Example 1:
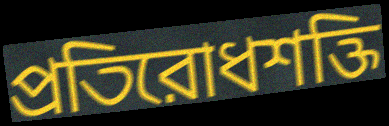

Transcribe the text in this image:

প্রতিরোধশক্তি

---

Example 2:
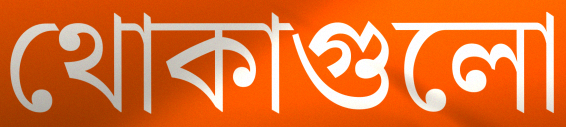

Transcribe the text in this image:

থোকাগুলো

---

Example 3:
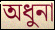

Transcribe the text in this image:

অধুনা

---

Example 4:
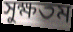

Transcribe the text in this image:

সুক্ষতম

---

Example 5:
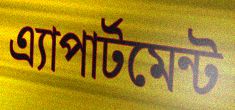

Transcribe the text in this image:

এ্যাপার্টমেন্ট